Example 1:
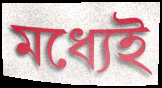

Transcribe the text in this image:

মধ্যেই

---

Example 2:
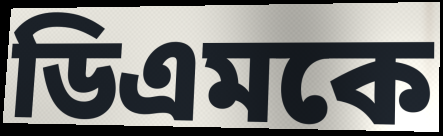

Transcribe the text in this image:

ডিএমকে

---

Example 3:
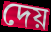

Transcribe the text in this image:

দেয়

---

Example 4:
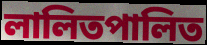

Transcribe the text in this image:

লালিতপালিত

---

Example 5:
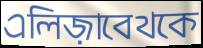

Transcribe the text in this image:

এলিজ়াবেথকে